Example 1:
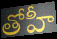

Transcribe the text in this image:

తోహీ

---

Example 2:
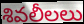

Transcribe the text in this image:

శివలీలలు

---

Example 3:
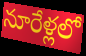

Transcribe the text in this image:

నూరేళ్లలో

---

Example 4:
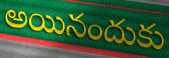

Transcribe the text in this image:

అయినందుకు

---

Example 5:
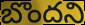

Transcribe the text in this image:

బొందని